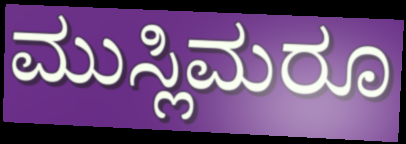
ಮುಸ್ಲಿಮರೂ